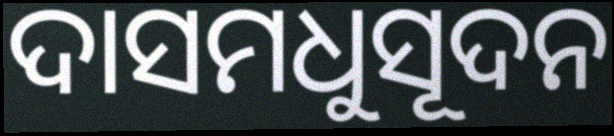
ଦାସମଧୁସୂଦନ